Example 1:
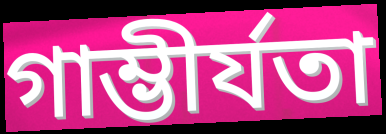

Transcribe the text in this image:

গাম্ভীর্যতা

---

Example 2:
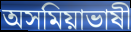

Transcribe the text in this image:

অসমিয়াভাষী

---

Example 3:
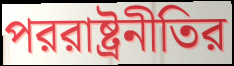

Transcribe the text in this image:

পররাষ্ট্রনীতির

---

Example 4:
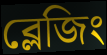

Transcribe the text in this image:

ব্লেজিং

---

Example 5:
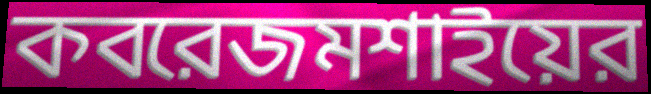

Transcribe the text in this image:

কবরেজমশাইয়ের